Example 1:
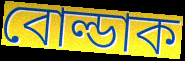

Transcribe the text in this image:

বোল্ডাক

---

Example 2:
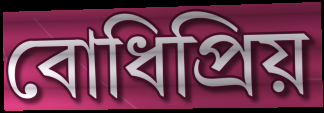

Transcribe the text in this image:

বোধিপ্রিয়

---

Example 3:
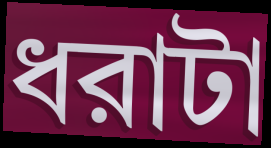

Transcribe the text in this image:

ধরাটা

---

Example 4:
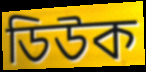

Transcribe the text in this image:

ডিউক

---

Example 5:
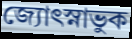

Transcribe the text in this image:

জ্যোৎস্নাভুক